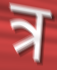
त्र